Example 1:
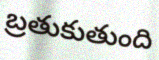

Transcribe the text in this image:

బ్రతుకుతుంది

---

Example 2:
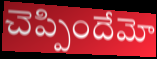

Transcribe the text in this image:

చెప్పిందేమో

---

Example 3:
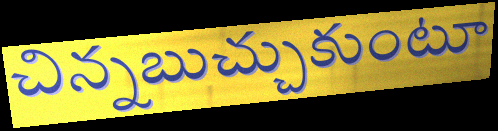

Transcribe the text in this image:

చిన్నబుచ్చుకుంటూ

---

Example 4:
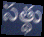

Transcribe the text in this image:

సత్థు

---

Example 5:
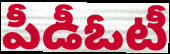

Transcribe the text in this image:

పీడీఓటీ